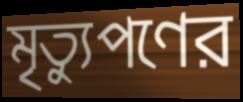
মৃত্যুপণের